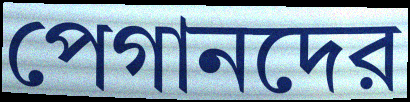
পেগানদের